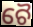
ଚୈ